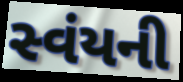
સ્વંયની